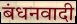
बंधनवादी